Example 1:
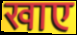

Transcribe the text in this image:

खाए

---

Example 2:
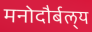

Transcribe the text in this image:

मनोदौर्बल्य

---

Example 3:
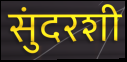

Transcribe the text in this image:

सुंदरशी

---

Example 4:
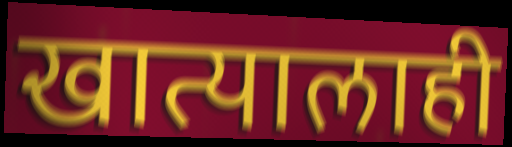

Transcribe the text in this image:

खात्यालाही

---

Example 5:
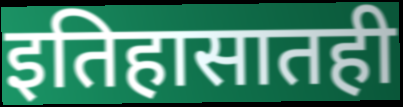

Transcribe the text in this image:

इतिहासातही